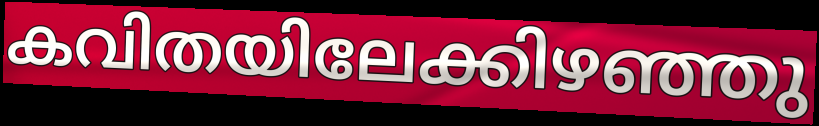
കവിതയിലേക്കിഴഞ്ഞു